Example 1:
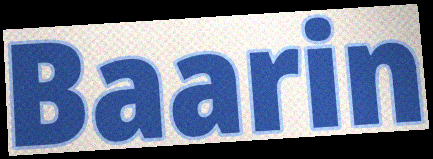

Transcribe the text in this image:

Baarin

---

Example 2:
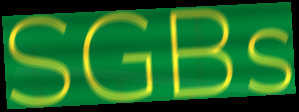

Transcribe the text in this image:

SGBs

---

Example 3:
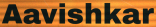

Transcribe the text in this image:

Aavishkar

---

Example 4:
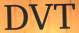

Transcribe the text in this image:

DVT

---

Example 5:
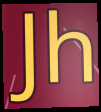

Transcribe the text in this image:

Jh